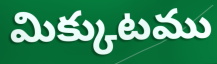
మిక్కుటము